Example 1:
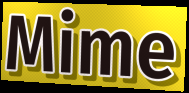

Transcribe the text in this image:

Mime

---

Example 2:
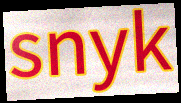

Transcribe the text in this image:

snyk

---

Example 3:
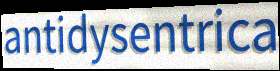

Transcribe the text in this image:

antidysentrica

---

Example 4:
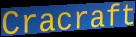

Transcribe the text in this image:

Cracraft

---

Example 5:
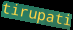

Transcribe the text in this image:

tirupati